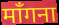
माँगना